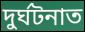
দুৰ্ঘটনাত